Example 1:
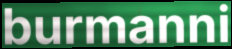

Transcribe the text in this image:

burmanni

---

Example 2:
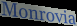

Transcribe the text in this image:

Monrovia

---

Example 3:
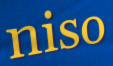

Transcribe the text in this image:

niso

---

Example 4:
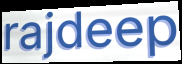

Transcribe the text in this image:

rajdeep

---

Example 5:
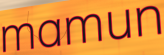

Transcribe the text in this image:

mamun